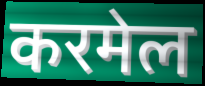
करमेल